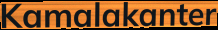
Kamalakanter